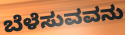
ಬೆಳೆಸುವವನು